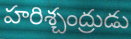
హరిశ్చంద్రుడు